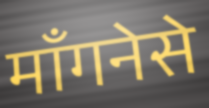
माँगनेसे